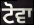
ਟੋਵਾ